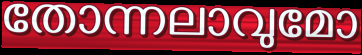
തോന്നലാവുമോ